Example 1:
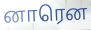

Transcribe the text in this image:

னாரென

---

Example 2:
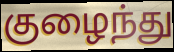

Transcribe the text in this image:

குழைந்து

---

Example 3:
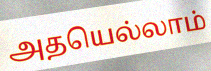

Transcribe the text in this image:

அதயெல்லாம்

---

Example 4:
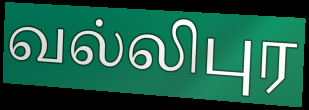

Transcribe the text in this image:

வல்லிபுர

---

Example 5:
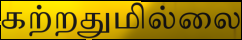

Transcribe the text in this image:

கற்றதுமில்லை